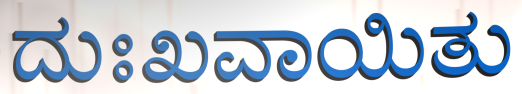
ದುಃಖವಾಯಿತು